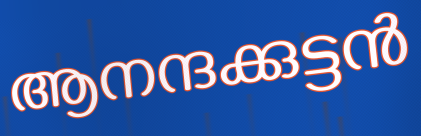
ആനന്ദക്കുട്ടൻ